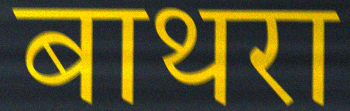
बाथरा